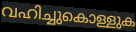
വഹിച്ചുകൊള്ളുക